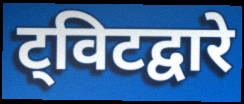
ट्विटद्वारे